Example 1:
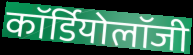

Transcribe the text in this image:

कॉर्डियोलॉजी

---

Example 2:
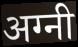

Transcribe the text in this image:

अग्नी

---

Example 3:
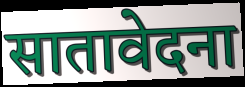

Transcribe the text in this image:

सातावेदना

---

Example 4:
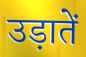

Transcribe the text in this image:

उड़ातें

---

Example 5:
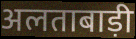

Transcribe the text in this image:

अलताबाड़ी